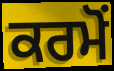
ਕਰਮੋਂ